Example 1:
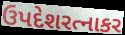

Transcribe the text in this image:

ઉપદેશરત્નાકર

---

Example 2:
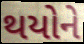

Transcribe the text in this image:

થયોને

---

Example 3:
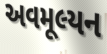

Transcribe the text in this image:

અવમૂલ્યન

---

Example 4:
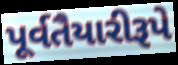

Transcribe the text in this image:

પૂર્વતૈયારીરૂપે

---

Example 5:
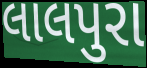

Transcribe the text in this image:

લાલપુરા